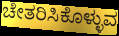
ಚೇತರಿಸಿಕೊಳ್ಳುವ